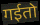
गईतो